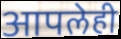
आपलेही